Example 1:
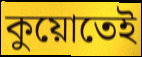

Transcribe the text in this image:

কুয়োতেই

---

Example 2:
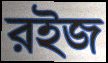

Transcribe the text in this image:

রইজ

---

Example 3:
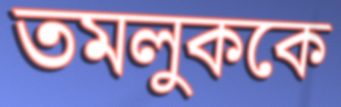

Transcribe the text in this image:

তমলুককে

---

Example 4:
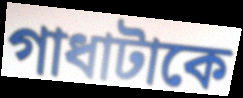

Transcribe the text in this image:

গাধাটাকে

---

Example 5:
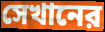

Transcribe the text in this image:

সেখানের